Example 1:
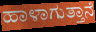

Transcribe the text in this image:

ಹಾಳಾಗುತ್ತಾನೆ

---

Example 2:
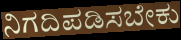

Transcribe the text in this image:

ನಿಗದಿಪಡಿಸಬೇಕು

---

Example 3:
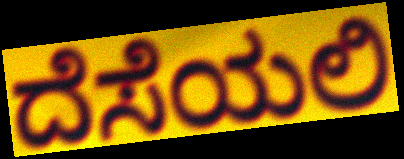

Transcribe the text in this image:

ದೆಸೆಯಲಿ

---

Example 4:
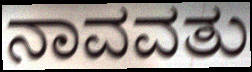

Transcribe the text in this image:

ನಾವವತು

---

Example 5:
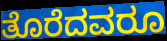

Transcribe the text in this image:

ತೊರೆದವರೂ